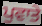
ਪੁਵਾਤੇ